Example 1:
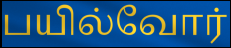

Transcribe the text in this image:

பயில்வோர்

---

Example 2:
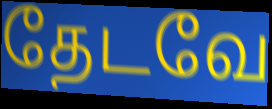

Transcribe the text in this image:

தேடவே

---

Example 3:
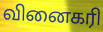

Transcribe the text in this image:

வினைகரி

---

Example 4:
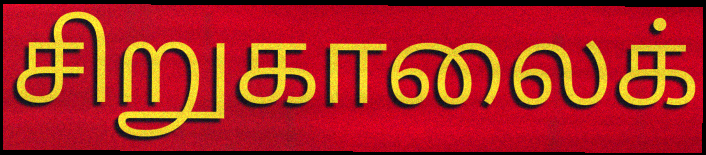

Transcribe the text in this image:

சிறுகாலைக்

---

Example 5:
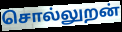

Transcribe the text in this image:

சொல்லுறன்